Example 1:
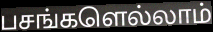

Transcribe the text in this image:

பசங்களெல்லாம்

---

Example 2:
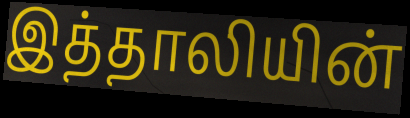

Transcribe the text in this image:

இத்தாலியின்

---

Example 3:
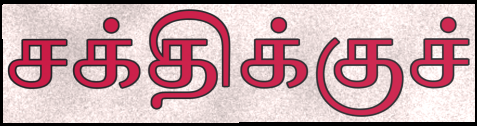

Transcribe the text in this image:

சக்திக்குச்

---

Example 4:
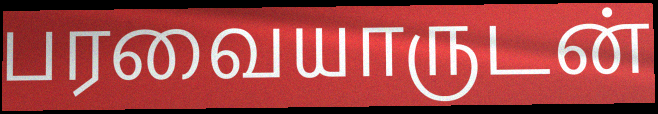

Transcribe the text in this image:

பரவையாருடன்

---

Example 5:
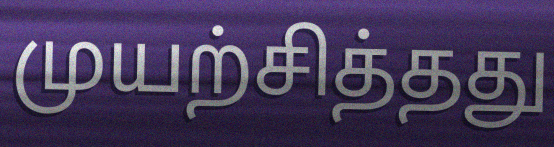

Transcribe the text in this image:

முயற்சித்தது